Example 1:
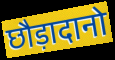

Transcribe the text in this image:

छौड़ादानो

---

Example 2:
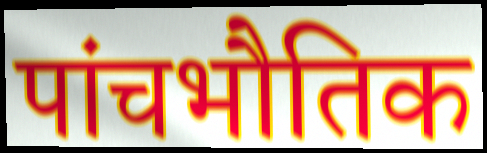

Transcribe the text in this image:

पांचभौतिक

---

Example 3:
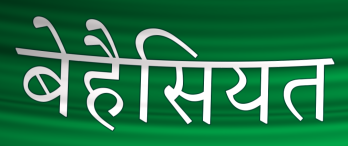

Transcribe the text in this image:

बेहैसियत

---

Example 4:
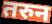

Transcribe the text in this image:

तरुन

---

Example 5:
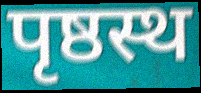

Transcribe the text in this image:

पृष्ठस्थ